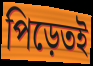
পিড়েতই